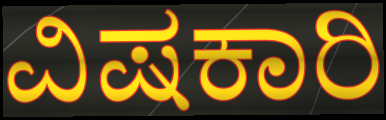
ವಿಷಕಾರಿ